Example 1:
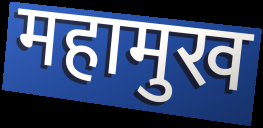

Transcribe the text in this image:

महामुख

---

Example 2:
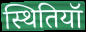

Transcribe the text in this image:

स्थितियॉ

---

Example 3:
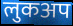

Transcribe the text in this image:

लुकअप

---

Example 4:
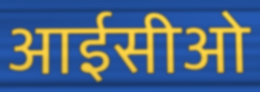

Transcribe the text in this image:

आईसीओ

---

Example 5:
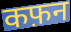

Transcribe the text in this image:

कफ़न